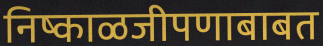
निष्काळजीपणाबाबत